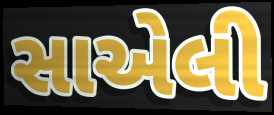
સાએલી